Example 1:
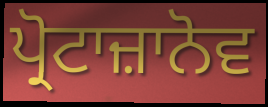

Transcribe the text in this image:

ਪ੍ਰੋਟਾਜ਼ਾਨੋਵ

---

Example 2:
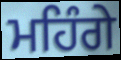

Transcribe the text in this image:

ਮਹਿੰਗੇ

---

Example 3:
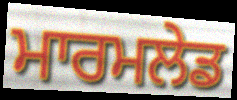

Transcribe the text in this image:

ਮਾਰਮਲੇਡ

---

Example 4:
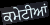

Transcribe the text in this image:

ਕਮੇਟੀਆਂ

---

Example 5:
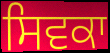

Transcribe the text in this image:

ਸਿਵਕਾ